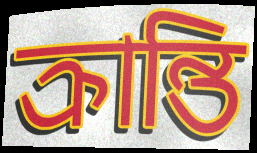
ক্রান্তি